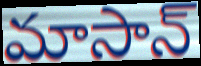
మాసాన్